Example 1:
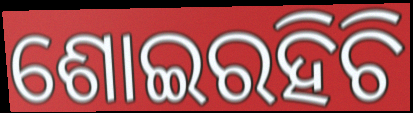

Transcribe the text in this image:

ଶୋଇରହିଚି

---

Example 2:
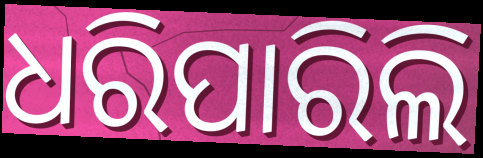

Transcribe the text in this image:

ଧରିପାରିଲି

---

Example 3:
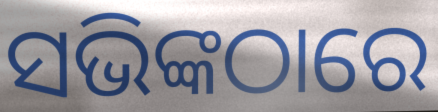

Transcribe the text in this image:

ସଭିଙ୍କଠାରେ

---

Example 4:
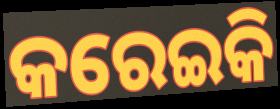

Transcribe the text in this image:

କରେଇକି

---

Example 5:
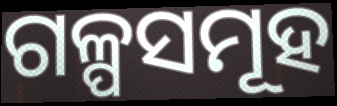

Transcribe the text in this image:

ଗଳ୍ପସମୂହ